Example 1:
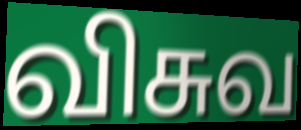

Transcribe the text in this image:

விசுவ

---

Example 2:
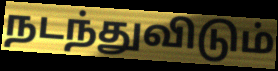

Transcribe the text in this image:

நடந்துவிடும்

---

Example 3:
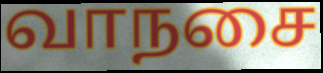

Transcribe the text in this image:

வாநசை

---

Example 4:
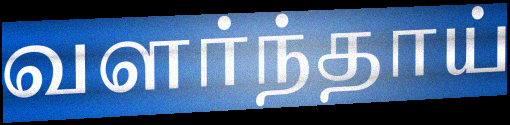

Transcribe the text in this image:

வளர்ந்தாய்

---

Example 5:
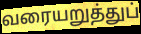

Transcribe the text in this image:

வரையறுத்துப்